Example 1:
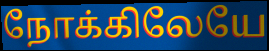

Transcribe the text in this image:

நோக்கிலேயே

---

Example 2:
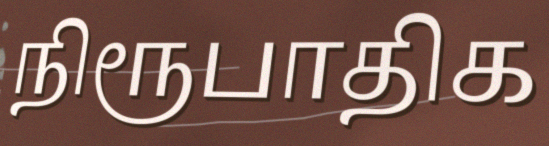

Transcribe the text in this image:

நிரூபாதிக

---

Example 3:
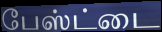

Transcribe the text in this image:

பேஸ்ட்டை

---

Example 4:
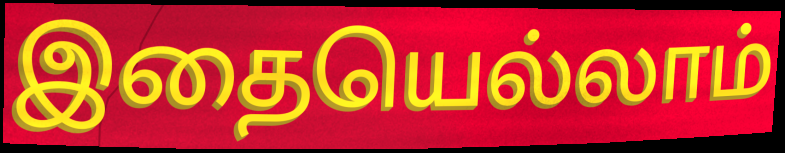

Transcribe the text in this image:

இதையெல்லாம்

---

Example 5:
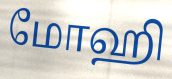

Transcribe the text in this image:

மோஹி